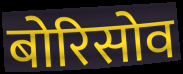
बोरिसोव